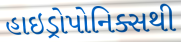
હાઇડ્રોપોનિક્સથી